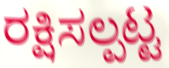
ರಕ್ಷಿಸಲ್ಪಟ್ಟ